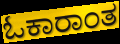
ಓಕಾರಾಂತ